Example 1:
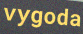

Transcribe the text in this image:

vygoda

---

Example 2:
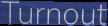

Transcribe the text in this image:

Turnout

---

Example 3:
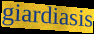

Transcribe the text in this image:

giardiasis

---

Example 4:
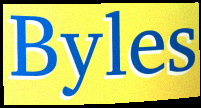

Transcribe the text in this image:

Byles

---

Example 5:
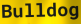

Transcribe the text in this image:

Bulldog